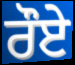
ਰੌਏ